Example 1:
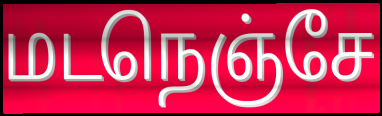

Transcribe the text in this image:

மடநெஞ்சே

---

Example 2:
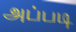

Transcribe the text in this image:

அப்படி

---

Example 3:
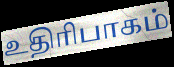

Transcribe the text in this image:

உதிரிபாகம்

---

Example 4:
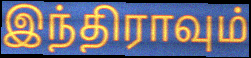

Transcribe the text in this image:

இந்திராவும்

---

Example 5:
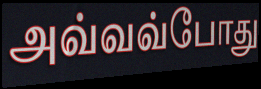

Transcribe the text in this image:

அவ்வவ்போது